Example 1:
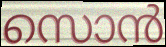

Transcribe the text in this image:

സൊൻ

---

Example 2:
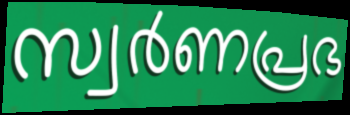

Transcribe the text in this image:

സ്വർണപ്രഭ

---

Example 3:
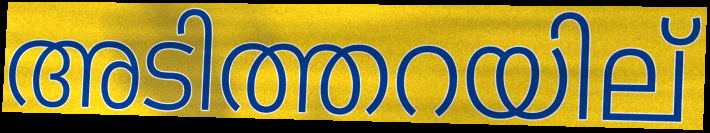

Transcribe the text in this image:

അടിത്തറയില്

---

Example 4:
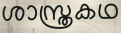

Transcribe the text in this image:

ശാസ്ത്രകഥ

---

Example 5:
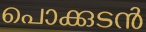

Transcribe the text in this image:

പൊക്കുടൻ